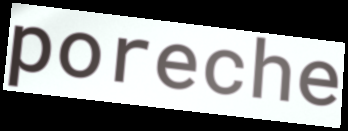
poreche